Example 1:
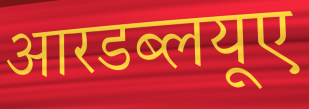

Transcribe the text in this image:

आरडब्लयूए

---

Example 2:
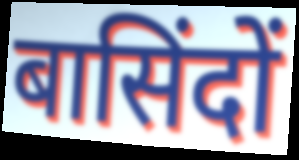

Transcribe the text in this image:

बासिंदों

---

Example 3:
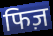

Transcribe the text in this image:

फिज़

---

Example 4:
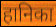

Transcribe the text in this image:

हानिका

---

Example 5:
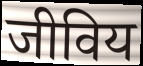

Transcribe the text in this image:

जीविय